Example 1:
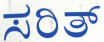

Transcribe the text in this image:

ಸರಿತ್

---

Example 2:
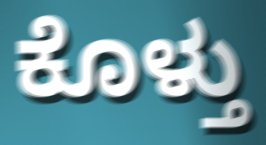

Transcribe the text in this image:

ಕೊಳ್ತು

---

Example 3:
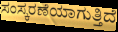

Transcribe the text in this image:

ಸಂಸ್ಕರಣೆಯಾಗುತ್ತಿದೆ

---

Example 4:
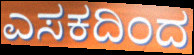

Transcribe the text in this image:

ಎಸಕದಿಂದ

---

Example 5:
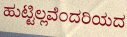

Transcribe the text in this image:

ಹುಟ್ಟಿಲ್ಲವೆಂದರಿಯದ